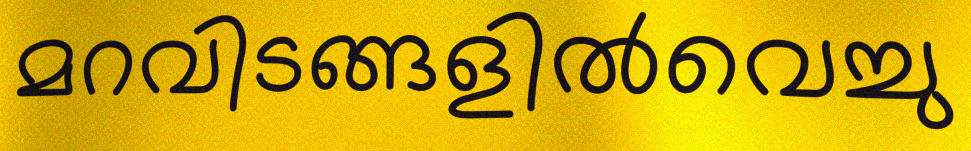
മറവിടങ്ങളിൽവെച്ചു